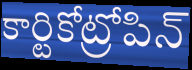
కార్టికోట్రోపిన్